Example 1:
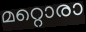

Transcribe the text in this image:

മറ്റൊരാ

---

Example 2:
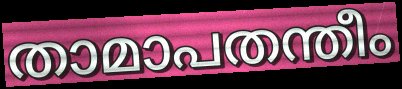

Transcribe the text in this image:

താമാപതന്തീം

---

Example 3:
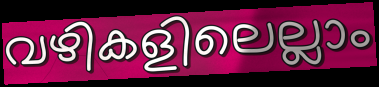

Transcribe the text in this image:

വഴികളിലെല്ലാം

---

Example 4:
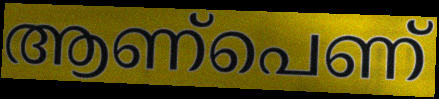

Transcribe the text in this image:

ആണ്പെണ്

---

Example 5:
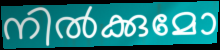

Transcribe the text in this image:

നിൽക്കുമോ